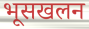
भूसखलन